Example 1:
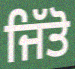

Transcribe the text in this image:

ਜਿੱਤੋ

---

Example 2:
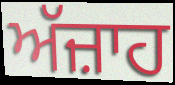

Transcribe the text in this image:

ਅੱਜ਼ਾਹ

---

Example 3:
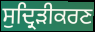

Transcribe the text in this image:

ਸੁਦ੍ਰਿੜੀਕਰਣ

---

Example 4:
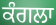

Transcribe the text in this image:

ਕੰਗਲਾ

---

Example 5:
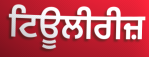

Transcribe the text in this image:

ਟਿਊਲੀਰੀਜ਼